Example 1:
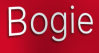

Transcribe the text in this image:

Bogie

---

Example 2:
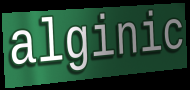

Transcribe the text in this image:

alginic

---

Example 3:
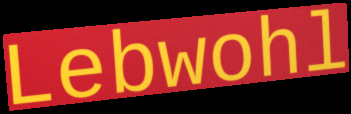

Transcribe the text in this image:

Lebwohl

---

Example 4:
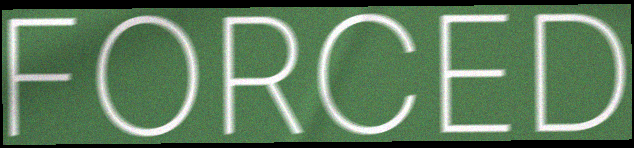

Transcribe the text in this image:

FORCED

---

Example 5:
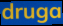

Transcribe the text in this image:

druga